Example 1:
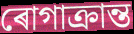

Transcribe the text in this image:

ৰোগাক্ৰান্ত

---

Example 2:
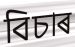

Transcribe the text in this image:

বিচাৰ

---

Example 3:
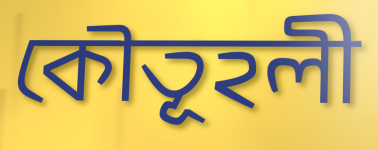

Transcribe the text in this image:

কৌতূহলী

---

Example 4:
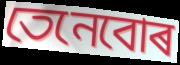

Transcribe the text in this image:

তেনেবোৰ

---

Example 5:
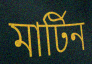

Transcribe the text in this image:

মাৰ্টিন